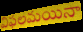
విఫలమయినా